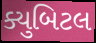
ક્યુબિટલ